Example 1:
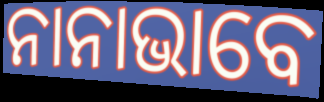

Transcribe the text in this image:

ନାନାଭାବେ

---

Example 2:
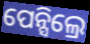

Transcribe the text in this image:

ପେନ୍ସିଲ୍ରେ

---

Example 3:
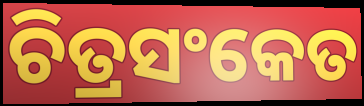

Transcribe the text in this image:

ଚିତ୍ରସଂକେତ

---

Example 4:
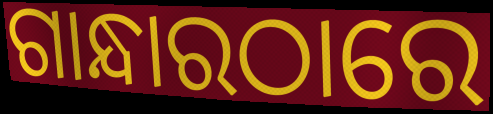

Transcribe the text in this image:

ଗାନ୍ଧାରଠାରେ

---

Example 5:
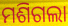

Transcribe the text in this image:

ମଶିଗଲା